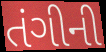
તંગીની